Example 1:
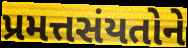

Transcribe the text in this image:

પ્રમત્તસંયતોને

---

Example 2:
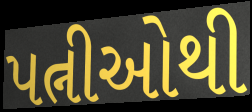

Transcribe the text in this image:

પત્નીઓથી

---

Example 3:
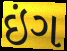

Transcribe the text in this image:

ઇંગ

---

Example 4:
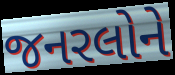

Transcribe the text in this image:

જનરલોને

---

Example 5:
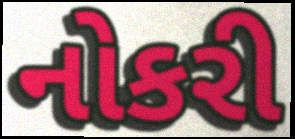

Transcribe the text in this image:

નોકરી